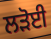
ਲੜੋਈ